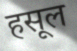
हसूल